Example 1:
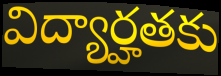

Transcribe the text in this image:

విద్యార్హతకు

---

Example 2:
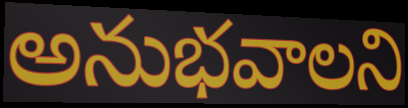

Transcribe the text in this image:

అనుభవాలని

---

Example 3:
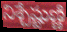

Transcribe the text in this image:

నిశ్చేష్టుణ్ణి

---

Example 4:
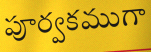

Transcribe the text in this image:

పూర్వకముగా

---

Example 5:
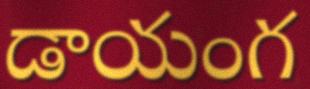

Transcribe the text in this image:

డాయంగ